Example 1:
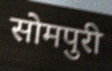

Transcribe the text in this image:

सोमपुरी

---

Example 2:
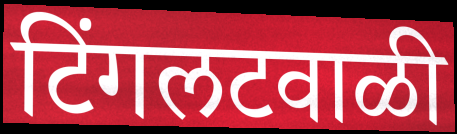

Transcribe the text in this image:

टिंगलटवाळी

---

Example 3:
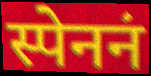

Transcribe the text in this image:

स्पेननं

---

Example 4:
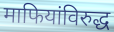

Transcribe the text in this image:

माफियांविरुद्ध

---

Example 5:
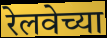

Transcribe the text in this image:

रेलवेच्या